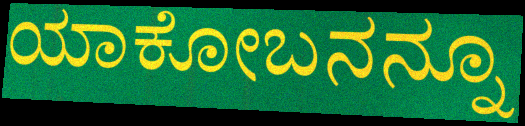
ಯಾಕೋಬನನ್ನೂ